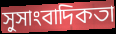
সুসাংবাদিকতা